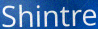
Shintre